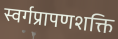
स्वर्गप्रापणशक्ति